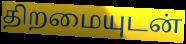
திறமையுடன்